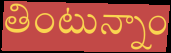
తింటున్నాం